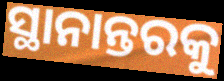
ସ୍ଥାନାନ୍ତରକୁ